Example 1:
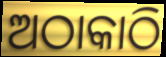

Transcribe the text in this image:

ଅଠାକାଠି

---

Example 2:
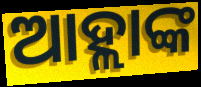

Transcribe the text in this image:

ଆହ୍ଲାଙ୍କ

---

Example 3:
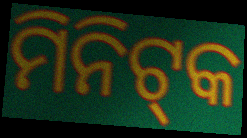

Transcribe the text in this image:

ମିନିଟ୍‍କ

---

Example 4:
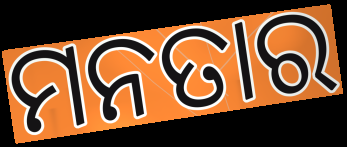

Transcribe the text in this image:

ମନତାର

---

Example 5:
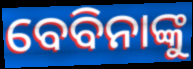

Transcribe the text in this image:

ବେବିନାଙ୍କୁ